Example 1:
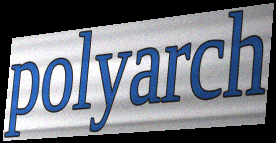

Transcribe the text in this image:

polyarch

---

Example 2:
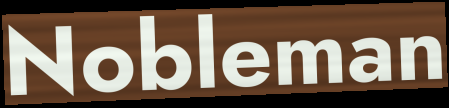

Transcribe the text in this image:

Nobleman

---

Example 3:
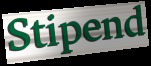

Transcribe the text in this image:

Stipend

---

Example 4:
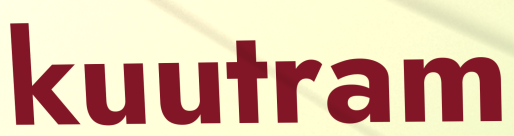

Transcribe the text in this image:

kuutram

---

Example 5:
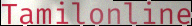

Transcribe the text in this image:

Tamilonline